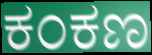
ಕಂಕಣ